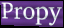
Propy